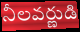
నీలవర్ణుడి